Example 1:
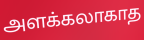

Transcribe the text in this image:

அளக்கலாகாத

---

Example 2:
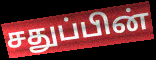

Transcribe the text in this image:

சதுப்பின்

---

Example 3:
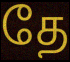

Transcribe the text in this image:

தே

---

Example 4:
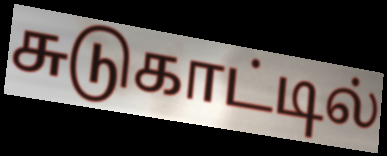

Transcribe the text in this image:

சுடுகாட்டில்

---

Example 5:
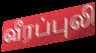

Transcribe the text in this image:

வீரப்புலி